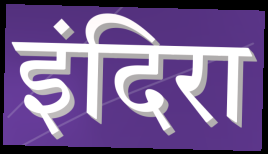
इंदिरा